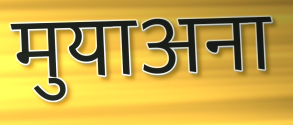
मुयाअना